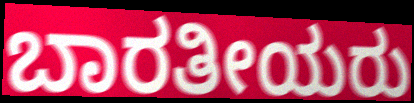
ಬಾರತೀಯರು